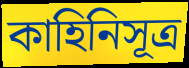
কাহিনিসূত্র